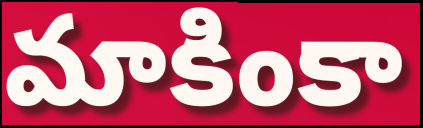
మాకింకా